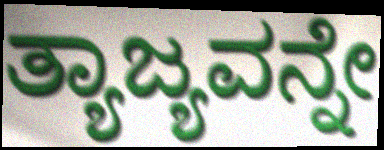
ತ್ಯಾಜ್ಯವನ್ನೇ